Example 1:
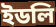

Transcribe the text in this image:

ইডলি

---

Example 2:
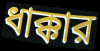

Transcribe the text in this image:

ধাক্কার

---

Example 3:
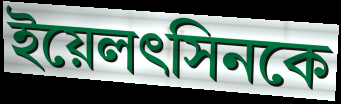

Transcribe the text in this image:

ইয়েলৎসিনকে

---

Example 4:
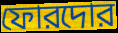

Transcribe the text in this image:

ফোরদোর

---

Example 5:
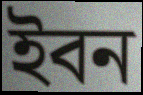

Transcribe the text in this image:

ইবন